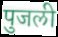
पुजली